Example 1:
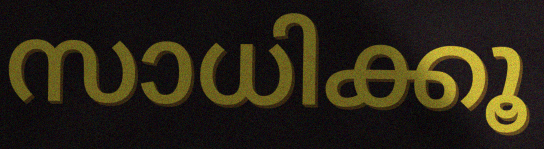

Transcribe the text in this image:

സാധിക്കൂ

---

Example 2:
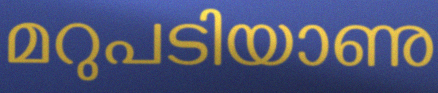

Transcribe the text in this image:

മറുപടിയാണു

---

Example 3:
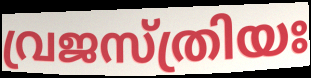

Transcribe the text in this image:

വ്രജസ്ത്രിയഃ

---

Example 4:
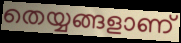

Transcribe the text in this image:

തെയ്യങ്ങളാണ്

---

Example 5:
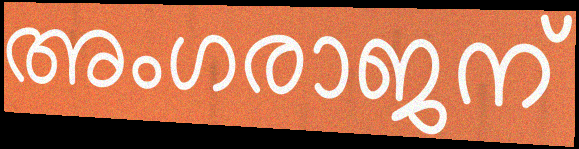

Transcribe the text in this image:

അംഗരാജന്